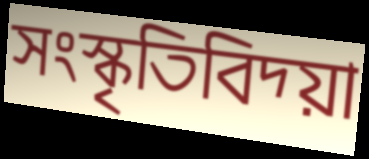
সংস্কৃতিবিদ্য়া